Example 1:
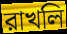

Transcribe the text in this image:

রাখলি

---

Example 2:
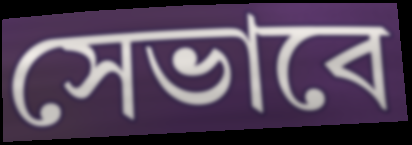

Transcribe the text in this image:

সেভাবে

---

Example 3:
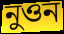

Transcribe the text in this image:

নুওন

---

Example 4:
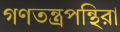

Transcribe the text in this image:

গণতন্ত্রপন্থিরা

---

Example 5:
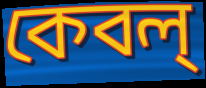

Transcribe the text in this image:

কেবল্